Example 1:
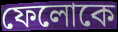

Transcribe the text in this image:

ফেলোকে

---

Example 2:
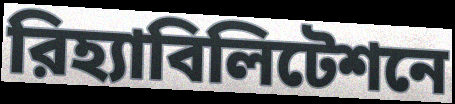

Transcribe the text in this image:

রিহ্যাবিলিটেশনে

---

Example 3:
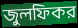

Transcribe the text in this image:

জুলফিকর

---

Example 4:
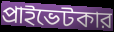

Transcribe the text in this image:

প্রাইভেটকার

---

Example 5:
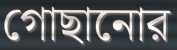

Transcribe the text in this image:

গোছানোর